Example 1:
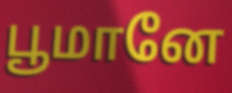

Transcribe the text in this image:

பூமானே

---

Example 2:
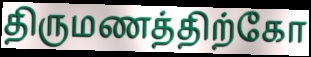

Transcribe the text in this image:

திருமணத்திற்கோ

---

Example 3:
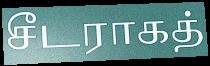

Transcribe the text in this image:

சீடராகத்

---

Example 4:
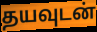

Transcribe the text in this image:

தயவுடன்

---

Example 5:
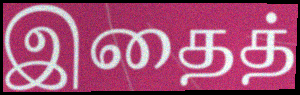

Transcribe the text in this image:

இதைத்